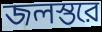
জলস্তরে